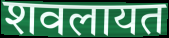
शवलायत